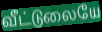
வீட்டுலையே